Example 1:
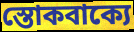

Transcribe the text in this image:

স্তোকবাক্যে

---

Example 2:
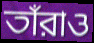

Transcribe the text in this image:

তাঁরাও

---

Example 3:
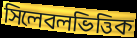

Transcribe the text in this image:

সিলেবলভিত্তিক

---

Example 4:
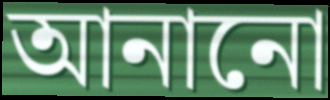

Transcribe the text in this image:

আনানো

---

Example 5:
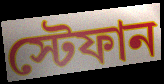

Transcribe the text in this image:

স্টেফান